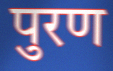
पुरण